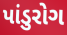
પાંડુરોગ